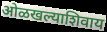
ओळखल्याशिवाय